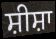
ਸ਼ੀਸ਼ਾ